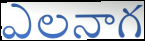
ఎలనాగ